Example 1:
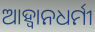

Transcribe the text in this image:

ଆହ୍ବାନଧର୍ମୀ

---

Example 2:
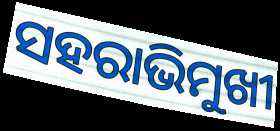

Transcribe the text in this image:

ସହରାଭିମୁଖୀ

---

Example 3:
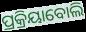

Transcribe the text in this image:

ପ୍ରକ୍ରିୟାବୋଲି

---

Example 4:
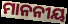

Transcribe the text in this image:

ମାନନୀୟ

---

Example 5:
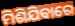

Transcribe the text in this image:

ମିଶିଯିବାରେ